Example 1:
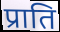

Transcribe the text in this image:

प्राति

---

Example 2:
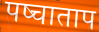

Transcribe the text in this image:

पष्चाताप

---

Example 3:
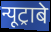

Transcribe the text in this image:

न्यूट्राबे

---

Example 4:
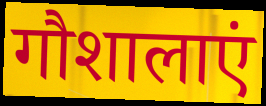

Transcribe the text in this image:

गौशालाएं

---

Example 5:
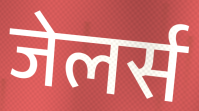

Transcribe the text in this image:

जेलर्स